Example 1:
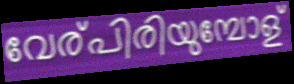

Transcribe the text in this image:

വേര്പിരിയുമ്പോള്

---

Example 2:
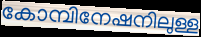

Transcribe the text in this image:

കോമ്പിനേഷനിലുള്ള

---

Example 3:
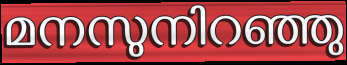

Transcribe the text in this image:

മനസുനിറഞ്ഞു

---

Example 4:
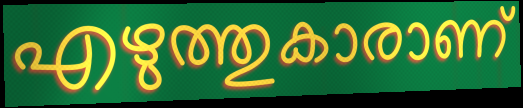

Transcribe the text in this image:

എഴുത്തുകാരാണ്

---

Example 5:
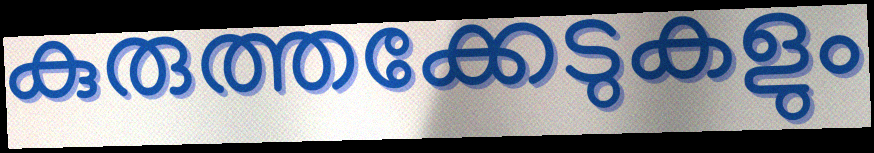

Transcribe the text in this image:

കുരുത്തക്കേടുകളും